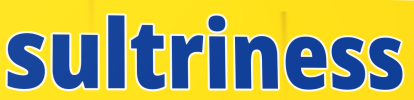
sultriness